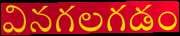
వినగలగడం